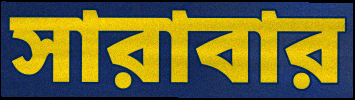
সারাবার